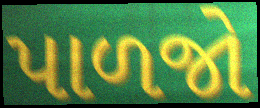
પાળજો